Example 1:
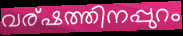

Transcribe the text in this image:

വര്ഷത്തിനപ്പുറം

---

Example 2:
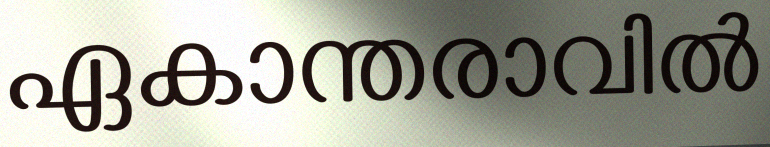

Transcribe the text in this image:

ഏകാന്തരാവിൽ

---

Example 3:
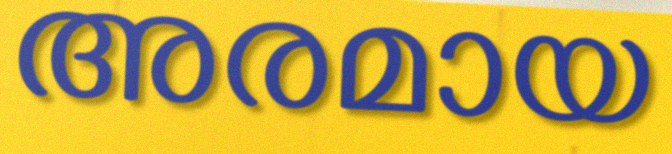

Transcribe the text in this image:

അരമായ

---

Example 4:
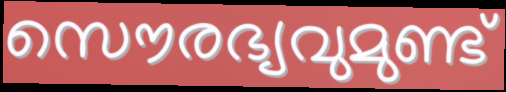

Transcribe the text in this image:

സൌരഭ്യവുമുണ്ട്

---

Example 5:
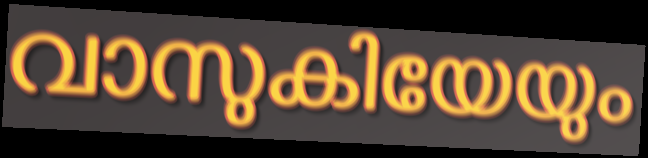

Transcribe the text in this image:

വാസുകിയേയും